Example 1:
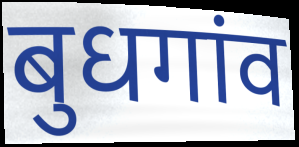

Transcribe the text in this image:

बुधगांव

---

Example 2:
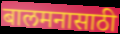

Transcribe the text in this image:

बालमनासाठी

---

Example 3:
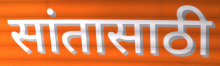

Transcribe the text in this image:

सांतासाठी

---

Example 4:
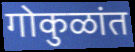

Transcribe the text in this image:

गोकुळांत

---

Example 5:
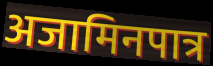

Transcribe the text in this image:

अजामिनपात्र